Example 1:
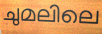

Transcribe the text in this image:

ചുമലിലെ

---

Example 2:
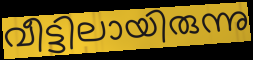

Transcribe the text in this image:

വീട്ടിലായിരുന്നു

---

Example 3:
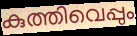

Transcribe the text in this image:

കുത്തിവെപ്പും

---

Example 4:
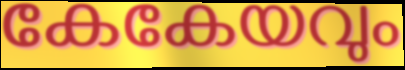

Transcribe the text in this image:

കേകേയവും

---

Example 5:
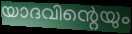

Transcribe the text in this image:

യാദവിന്റെയും